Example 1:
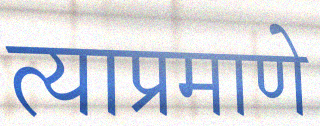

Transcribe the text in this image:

त्याप्रमाणे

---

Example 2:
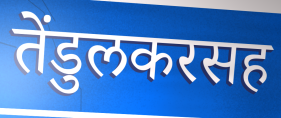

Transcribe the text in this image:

तेंडुलकरसह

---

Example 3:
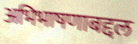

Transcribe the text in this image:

अभिभाषणाबद्दल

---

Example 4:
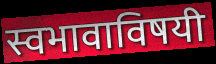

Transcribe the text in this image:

स्वभावाविषयी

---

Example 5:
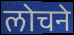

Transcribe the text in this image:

लोचने